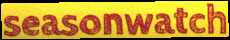
seasonwatch